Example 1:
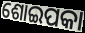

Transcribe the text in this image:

ଶୋଇପକା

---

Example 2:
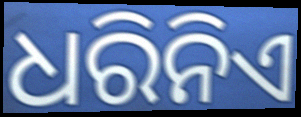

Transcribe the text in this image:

ଧରିନିଏ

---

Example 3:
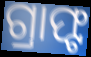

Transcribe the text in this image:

ଗ୍ରାଫ୍ଟ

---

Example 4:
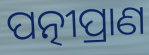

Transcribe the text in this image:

ପତ୍ନୀପ୍ରାଣ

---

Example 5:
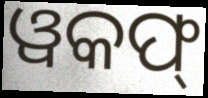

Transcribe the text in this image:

ୱକଫ୍